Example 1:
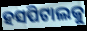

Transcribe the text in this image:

ହସପିଟାଲକୁ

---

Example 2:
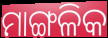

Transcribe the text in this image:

ମାଙ୍ଗଳିକ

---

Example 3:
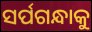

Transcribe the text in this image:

ସର୍ପଗନ୍ଧାକୁ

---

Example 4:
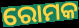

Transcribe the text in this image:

ରୋମକ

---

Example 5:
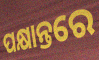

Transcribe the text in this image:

ପକ୍ଷାନ୍ତରେ